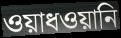
ওয়াধওয়ানি